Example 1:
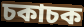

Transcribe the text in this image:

চকাচক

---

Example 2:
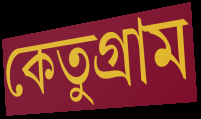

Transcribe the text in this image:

কেতুগ্রাম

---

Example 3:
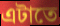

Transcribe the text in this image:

এটাতে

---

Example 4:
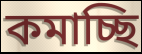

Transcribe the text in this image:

কমাচ্ছি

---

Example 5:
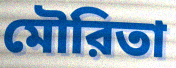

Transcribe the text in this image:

মৌরিতা